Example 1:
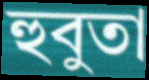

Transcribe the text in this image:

হুবুতা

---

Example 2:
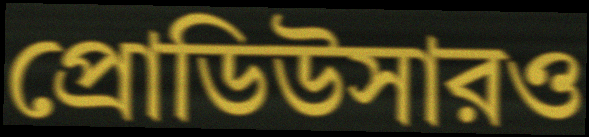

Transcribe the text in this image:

প্রোডিউসারও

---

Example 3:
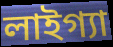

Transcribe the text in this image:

লাইগ্যা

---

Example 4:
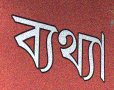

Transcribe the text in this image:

ব্যথ্যা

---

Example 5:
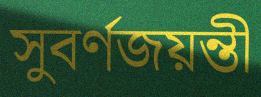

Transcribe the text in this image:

সুবর্ণজয়ন্তী